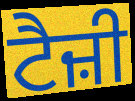
ਟੈਜ਼ੀ